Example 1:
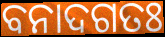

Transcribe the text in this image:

ବନାଦଗତଃ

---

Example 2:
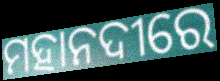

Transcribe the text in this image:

ମହାନଦୀରେ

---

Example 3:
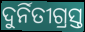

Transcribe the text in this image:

ଦୁର୍ନିତୀଗ୍ରସ୍ତ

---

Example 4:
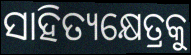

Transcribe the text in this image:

ସାହିତ୍ୟକ୍ଷେତ୍ରକୁ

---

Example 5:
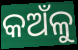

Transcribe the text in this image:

କଅଁଳୁ